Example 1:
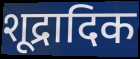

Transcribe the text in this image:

शूद्रादिक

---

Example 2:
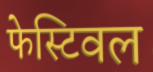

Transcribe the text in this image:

फेस्टिवल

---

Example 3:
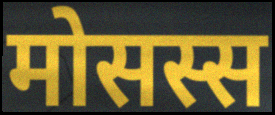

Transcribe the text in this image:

मोसस्स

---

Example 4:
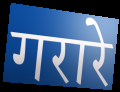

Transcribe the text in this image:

गरारे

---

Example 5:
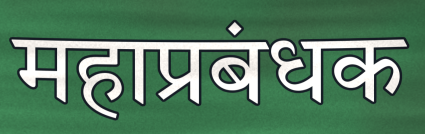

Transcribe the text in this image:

महाप्रबंधक